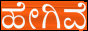
ಹೇಗಿವೆ